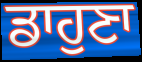
ਡਾਹੁਣਾ